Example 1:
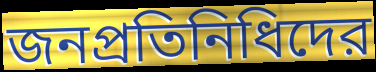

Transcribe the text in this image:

জনপ্রতিনিধিদের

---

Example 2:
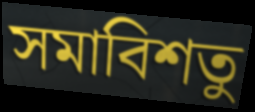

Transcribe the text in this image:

সমাবিশতু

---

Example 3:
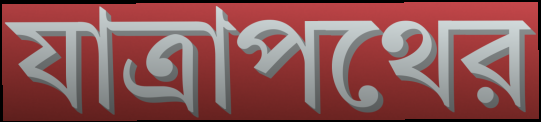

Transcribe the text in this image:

যাত্রাপথের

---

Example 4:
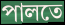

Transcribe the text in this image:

পালতে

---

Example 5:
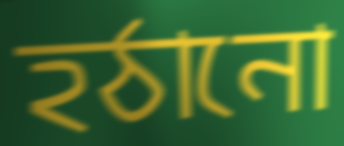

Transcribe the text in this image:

হঠানো